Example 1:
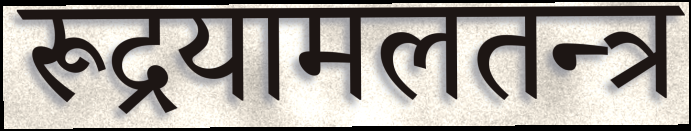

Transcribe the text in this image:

रूद्रयामलतन्त्र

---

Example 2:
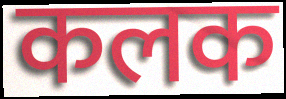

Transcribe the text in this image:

कलक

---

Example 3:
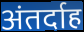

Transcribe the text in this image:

अंतर्दाह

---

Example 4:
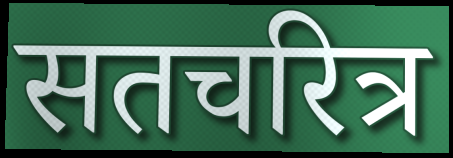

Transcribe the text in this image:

सतचरित्र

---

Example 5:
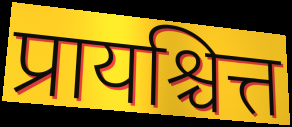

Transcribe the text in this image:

प्रायश्चित्त